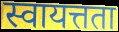
स्वायत्तता